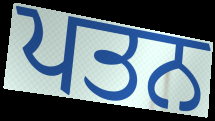
ਪਤਨ